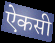
ऐकसी